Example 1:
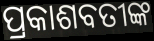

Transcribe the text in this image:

ପ୍ରକାଶବତୀଙ୍କ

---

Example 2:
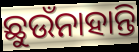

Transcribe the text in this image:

ଛୁଉଁନାହାନ୍ତି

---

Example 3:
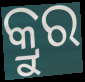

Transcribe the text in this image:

କ୍ରୁର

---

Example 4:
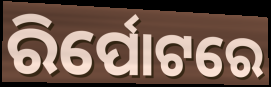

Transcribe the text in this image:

ରିର୍ପୋଟରେ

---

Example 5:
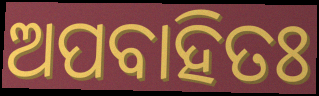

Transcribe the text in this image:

ଅପବାହିତଃ